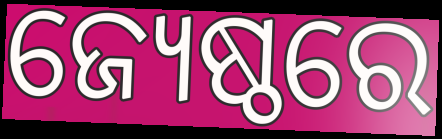
ଜ୍ୟେଷ୍ଠରେ